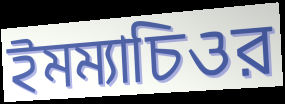
ইমম্যাচিওর